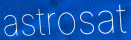
astrosat